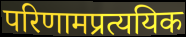
परिणामप्रत्ययिक